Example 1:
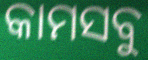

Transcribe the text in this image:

କାମସବୁ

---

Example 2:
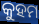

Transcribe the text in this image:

କୁହମ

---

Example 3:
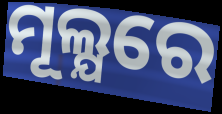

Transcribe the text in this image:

ମୂଲ୍ଯରେ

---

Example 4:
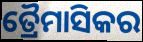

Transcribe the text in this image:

ତ୍ରୈମାସିକର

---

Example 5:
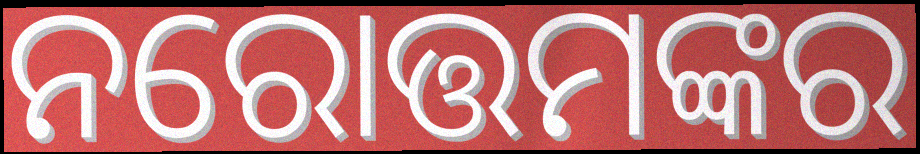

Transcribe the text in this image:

ନରୋତ୍ତମଙ୍କର